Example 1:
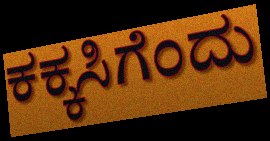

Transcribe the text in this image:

ಕಕ್ಕಸಿಗೆಂದು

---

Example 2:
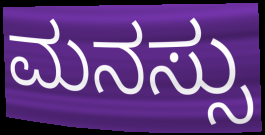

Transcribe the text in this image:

ಮನಸ್ಸು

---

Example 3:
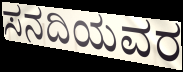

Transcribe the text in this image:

ಸನದಿಯವರ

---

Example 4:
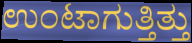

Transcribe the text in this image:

ಉಂಟಾಗುತ್ತಿತ್ತು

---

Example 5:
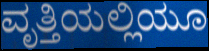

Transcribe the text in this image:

ವೃತ್ತಿಯಲ್ಲಿಯೂ